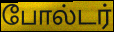
போல்டர்